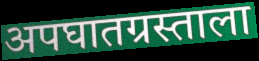
अपघातग्रस्ताला